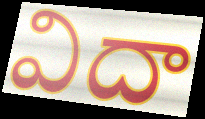
విదా